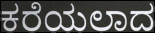
ಕರೆಯಲಾದ